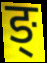
ङ्